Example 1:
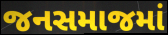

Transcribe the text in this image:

જનસમાજમાં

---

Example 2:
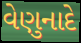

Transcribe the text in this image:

વેણુનાદે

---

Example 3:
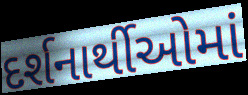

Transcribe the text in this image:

દર્શનાર્થીઓમાં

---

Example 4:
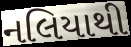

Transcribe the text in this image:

નલિયાથી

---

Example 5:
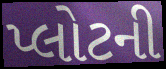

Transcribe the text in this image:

પ્લોટની